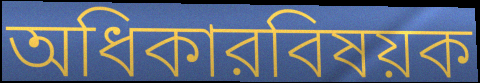
অধিকারবিষয়ক